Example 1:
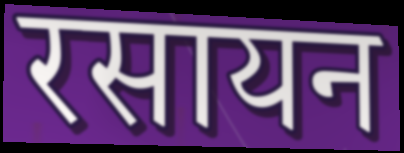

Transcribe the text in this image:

रसायन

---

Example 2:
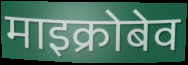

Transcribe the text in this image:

माइक्रोबेव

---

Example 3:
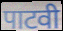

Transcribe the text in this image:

पाटवी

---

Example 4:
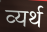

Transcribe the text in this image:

व्‍यर्थ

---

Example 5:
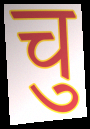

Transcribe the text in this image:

चु